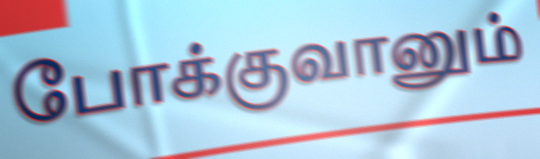
போக்குவானும்